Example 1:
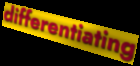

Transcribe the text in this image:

differentiating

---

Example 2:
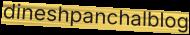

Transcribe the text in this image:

dineshpanchalblog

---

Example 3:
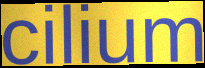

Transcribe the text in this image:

cilium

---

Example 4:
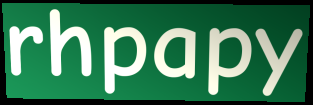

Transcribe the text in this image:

rhpapy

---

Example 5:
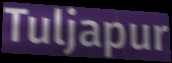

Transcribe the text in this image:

Tuljapur